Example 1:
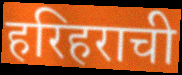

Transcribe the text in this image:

हरिहराची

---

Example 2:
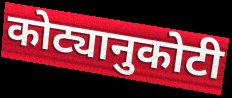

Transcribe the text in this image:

कोट्यानुकोटी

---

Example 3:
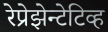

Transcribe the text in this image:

रेप्रेझेन्टेटिव्ह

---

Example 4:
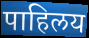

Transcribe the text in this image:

पाहिलय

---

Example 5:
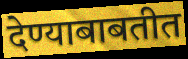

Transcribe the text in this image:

देण्याबाबतीत